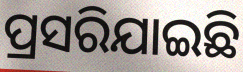
ପ୍ରସରିଯାଇଛି